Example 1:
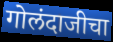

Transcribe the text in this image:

गोलंदाजीचा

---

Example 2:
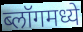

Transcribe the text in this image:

ब्लॉगमध्ये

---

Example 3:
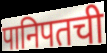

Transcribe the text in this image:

पानिपतची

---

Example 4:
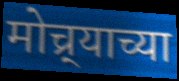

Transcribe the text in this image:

मोच्र्याच्या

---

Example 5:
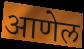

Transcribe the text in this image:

आणेल